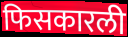
फिसकारली